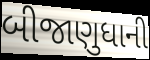
બીજાણુધાની